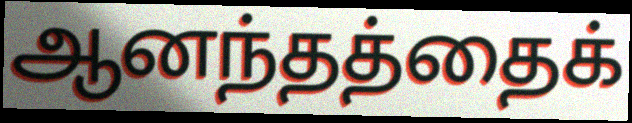
ஆனந்தத்தைக்